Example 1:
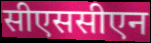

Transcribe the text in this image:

सीएससीएन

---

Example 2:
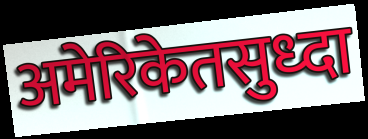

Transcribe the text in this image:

अमेरिकेतसुध्दा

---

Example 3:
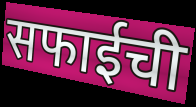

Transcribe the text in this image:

सफाईची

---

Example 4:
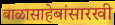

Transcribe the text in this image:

बाळासाहेबांसारखी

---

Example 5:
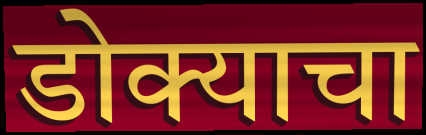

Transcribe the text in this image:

डोक्याचा